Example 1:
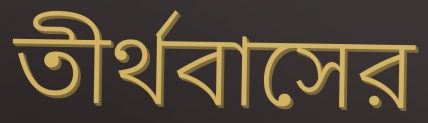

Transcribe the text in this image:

তীর্থবাসের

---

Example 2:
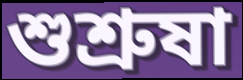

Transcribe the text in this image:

শুশ্রুষা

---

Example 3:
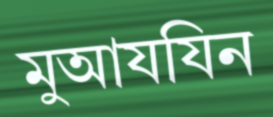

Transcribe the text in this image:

মুআযযিন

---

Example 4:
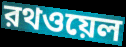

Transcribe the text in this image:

রথওয়েল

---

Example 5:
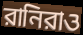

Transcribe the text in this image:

রানিরাও